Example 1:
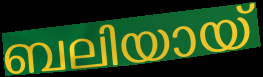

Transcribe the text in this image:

ബലിയായ്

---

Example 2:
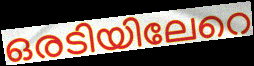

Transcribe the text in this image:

ഒരടിയിലേറെ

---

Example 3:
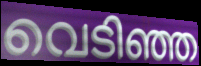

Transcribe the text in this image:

വെടിഞ്ഞ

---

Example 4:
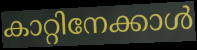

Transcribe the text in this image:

കാറ്റിനേക്കാൾ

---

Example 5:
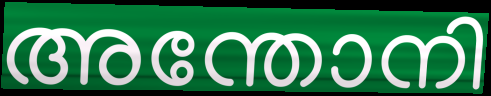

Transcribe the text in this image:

അന്തോനി